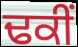
ਢਕੀਂ